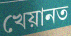
খেয়ানত